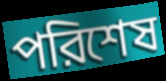
পরিশেষ